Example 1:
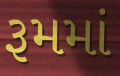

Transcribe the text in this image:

રૂમમાં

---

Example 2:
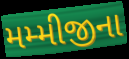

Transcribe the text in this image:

મમ્મીજીના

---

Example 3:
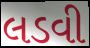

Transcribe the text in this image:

લડવી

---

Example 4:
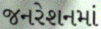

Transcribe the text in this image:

જનરેશનમાં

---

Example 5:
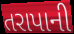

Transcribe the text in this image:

તરાપાની